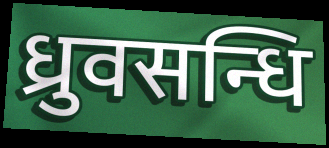
ध्रुवसन्धि